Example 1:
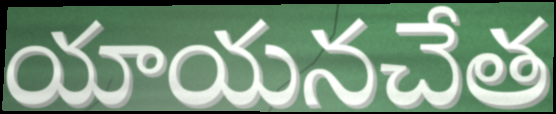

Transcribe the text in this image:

యాయనచేత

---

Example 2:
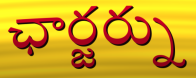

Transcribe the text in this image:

ఛార్జర్ను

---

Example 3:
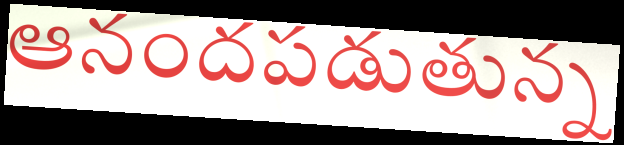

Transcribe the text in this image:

ఆనందపడుతున్న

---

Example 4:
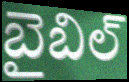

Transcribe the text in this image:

బైబిల్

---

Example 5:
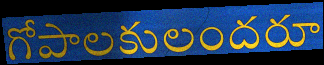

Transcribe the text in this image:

గోపాలకులందరూ